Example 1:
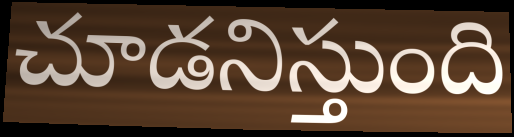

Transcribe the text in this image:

చూడనిస్తుంది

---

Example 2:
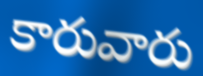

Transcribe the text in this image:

కారువారు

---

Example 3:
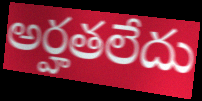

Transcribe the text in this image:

అర్హతలేదు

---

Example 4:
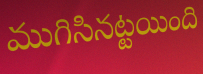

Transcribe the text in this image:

ముగిసినట్టయింది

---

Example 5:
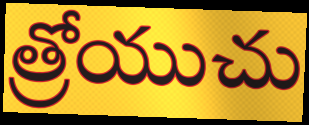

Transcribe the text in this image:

త్రోయుచు